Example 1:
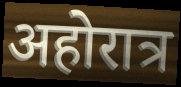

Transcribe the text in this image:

अहोरात्र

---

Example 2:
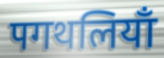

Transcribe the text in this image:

पगथलियाँ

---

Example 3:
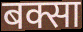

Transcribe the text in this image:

बक्सा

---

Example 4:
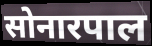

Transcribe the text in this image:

सोनारपाल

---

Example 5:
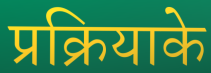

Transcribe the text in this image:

प्रक्रियाके